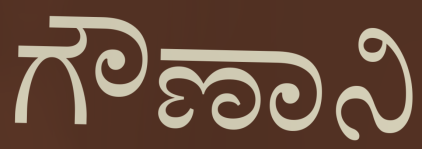
ಗೌಣಾನಿ